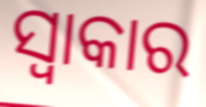
ସ୍ୱାକାର